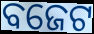
ବଜେଟ